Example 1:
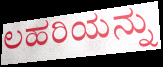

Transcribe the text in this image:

ಲಹರಿಯನ್ನು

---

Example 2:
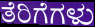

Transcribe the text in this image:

ತೆರಿಗೆಗಳು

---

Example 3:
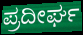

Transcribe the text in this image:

ಪ್ರದೀರ್ಘ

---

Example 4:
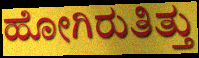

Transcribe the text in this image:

ಹೋಗಿರುತಿತ್ತು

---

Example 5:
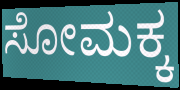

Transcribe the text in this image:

ಸೋಮಕ್ಕ